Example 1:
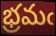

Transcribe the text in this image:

భ్రమఁ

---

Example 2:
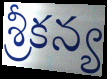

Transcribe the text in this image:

శ్రీకన్య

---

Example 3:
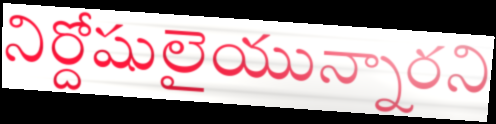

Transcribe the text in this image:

నిర్దోషులైయున్నారని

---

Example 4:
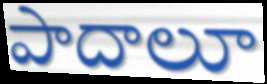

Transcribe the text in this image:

పాదాలూ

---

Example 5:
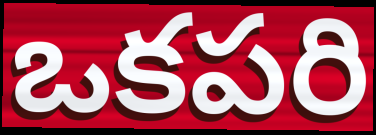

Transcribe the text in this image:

ఒకపరి